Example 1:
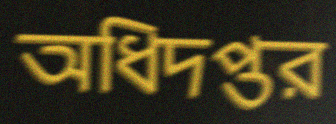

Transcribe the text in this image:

অধিদপ্তর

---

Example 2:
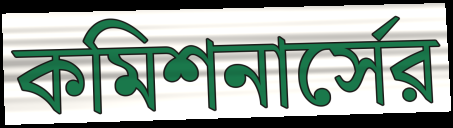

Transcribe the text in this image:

কমিশনার্সের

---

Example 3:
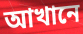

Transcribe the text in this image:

আখানে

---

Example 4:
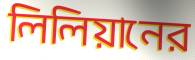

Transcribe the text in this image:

লিলিয়ানের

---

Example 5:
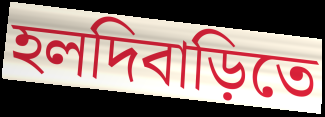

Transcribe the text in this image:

হলদিবাড়িতে